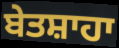
ਬੇਤਸ਼ਾਹਾ